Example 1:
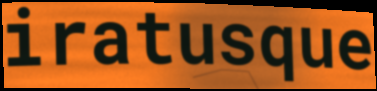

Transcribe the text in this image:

iratusque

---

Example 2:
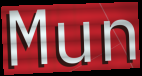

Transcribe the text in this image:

Mun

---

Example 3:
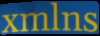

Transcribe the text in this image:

xmlns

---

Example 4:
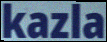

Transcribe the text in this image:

kazla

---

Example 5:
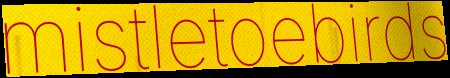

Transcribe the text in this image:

mistletoebirds